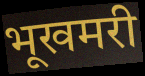
भूखमरी